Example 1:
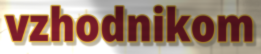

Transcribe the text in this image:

vzhodnikom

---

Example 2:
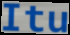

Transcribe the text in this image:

Itu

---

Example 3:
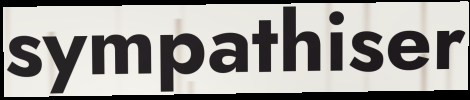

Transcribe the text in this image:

sympathiser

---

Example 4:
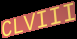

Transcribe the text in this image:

CLVIII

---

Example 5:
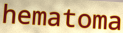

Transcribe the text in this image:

hematoma